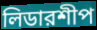
লিডারশীপ